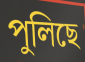
পুলিছে